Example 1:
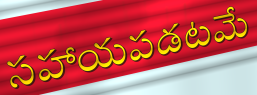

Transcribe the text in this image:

సహాయపడటమే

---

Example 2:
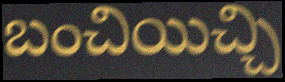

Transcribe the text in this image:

బంచియిచ్చి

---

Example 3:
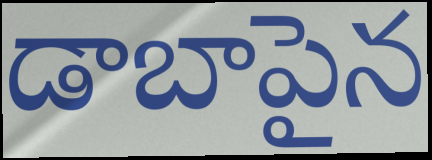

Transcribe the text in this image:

డాబాపైన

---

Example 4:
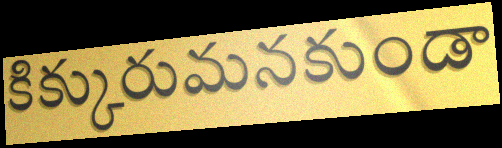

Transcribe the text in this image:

కిక్కురుమనకుండా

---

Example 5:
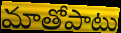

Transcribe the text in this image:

మాతోపాటు